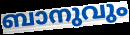
ബാനുവും